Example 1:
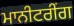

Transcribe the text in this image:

ਮਾਨੀਟਰੀਂਗ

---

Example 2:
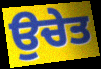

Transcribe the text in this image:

ਉਚੇਤ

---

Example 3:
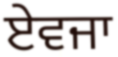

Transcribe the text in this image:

ਏਵਜਾ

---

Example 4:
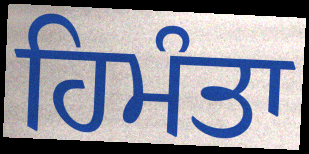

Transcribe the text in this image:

ਹਿਮੰਤਾ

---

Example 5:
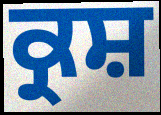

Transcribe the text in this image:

ਕ੍ਰਸ਼